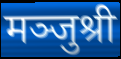
मञ्जुश्री